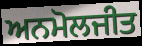
ਅਨਮੋਲਜੀਤ